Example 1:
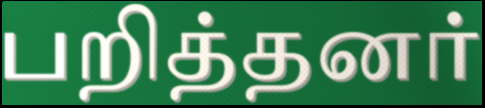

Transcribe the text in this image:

பறித்தனர்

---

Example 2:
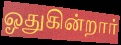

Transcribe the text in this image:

ஓதுகின்றார்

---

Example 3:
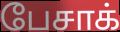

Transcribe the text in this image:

பேசாக்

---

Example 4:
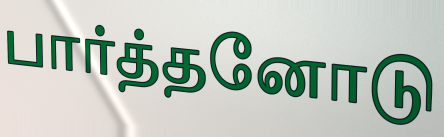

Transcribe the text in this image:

பார்த்தனோடு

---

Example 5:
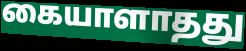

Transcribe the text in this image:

கையாளாதது